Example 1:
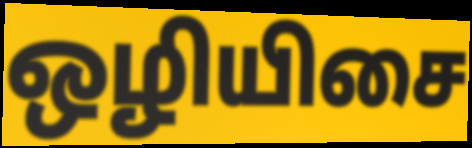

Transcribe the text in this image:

ஒழியிசை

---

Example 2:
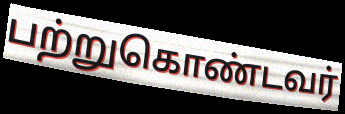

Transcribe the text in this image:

பற்றுகொண்டவர்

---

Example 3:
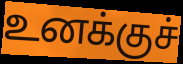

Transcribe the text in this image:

உனக்குச்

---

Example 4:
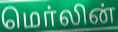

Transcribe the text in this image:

மெர்லின்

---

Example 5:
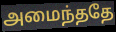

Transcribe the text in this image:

அமைந்ததே